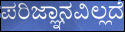
ಪರಿಜ್ಞಾನವಿಲ್ಲದೆ